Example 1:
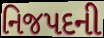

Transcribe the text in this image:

નિજપદની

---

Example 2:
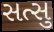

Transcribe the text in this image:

સત્સુ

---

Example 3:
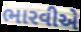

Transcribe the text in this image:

ભારવીએ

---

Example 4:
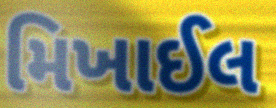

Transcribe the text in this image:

મિખાઈલ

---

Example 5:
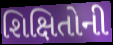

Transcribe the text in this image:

શિક્ષિતોની